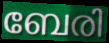
ബേരി